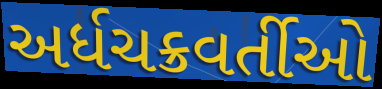
અર્ધચક્રવર્તીઓ